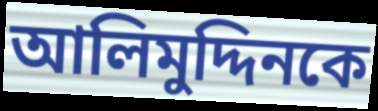
আলিমুদ্দিনকে